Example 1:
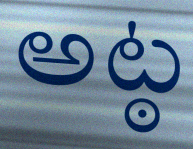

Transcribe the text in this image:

అట్ఠ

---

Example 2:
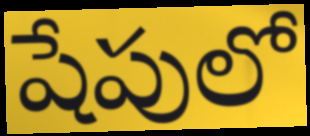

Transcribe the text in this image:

షేపులో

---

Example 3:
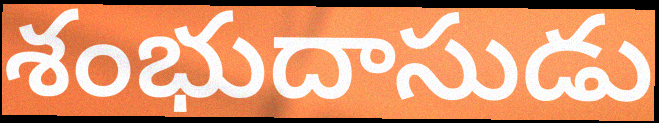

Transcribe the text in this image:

శంభుదాసుడు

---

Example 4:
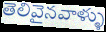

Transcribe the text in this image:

తెలివైనవాళ్ళు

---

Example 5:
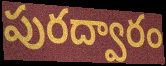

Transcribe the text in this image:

పురద్వారం